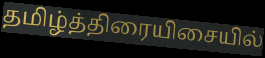
தமிழ்த்திரையிசையில்